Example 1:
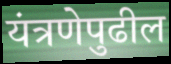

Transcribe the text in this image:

यंत्रणेपुढील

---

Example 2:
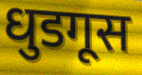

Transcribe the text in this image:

धुडगूस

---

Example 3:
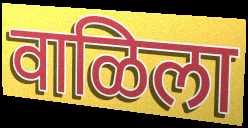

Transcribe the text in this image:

वाळिला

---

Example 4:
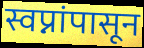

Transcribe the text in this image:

स्वप्नांपासून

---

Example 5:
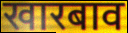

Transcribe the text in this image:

खारबाव